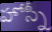
హోస్నీ